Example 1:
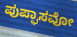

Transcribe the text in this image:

ಪುಪ್ಫಾಸವೋ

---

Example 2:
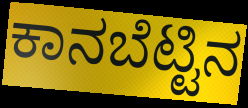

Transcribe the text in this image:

ಕಾನಬೆಟ್ಟಿನ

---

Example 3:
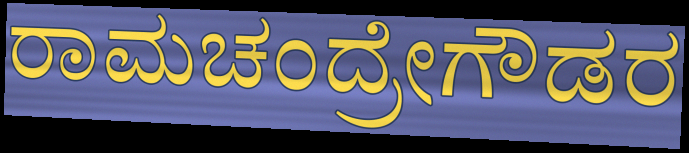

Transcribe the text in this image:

ರಾಮಚಂದ್ರೇಗೌಡರ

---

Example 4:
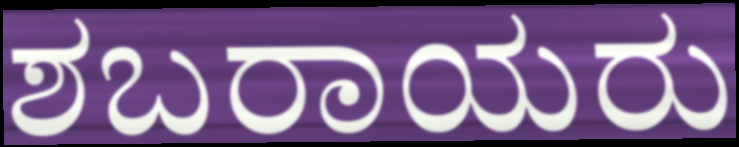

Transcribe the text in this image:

ಶಬರಾಯರು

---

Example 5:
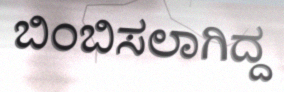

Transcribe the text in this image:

ಬಿಂಬಿಸಲಾಗಿದ್ದ